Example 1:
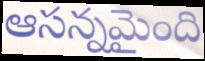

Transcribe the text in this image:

ఆసన్నమైంది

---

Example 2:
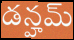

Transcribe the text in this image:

డన్హమ్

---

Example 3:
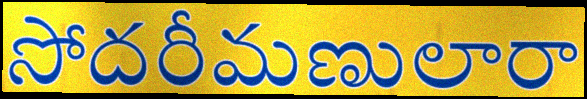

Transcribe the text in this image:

సోదరీమణులారా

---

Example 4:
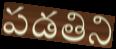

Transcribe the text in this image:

పడతిని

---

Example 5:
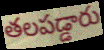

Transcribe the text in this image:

తలపడ్డారు